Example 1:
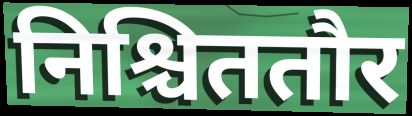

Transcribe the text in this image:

निश्चिततौर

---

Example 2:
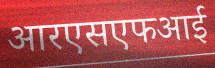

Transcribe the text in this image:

आरएसएफआई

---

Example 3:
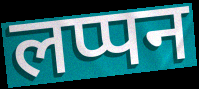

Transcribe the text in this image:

लप्पन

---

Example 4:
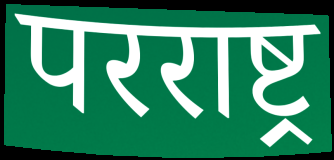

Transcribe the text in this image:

परराष्ट्र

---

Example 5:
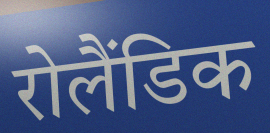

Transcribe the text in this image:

रोलैंडिक